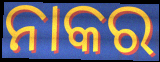
ନାକର